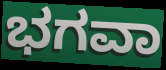
ಭಗವಾ